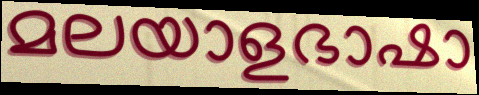
മലയാളഭാഷാ